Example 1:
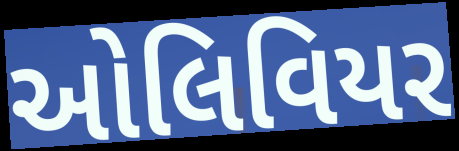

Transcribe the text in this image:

ઓલિવિયર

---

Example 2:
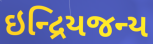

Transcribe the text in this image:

ઇન્દ્રિયજન્ય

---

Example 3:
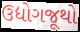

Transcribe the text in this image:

ઉદ્યોગજૂથો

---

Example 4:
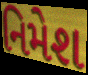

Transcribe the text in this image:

નિમેશ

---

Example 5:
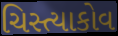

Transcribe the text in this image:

ચિસ્ત્યાકોવ